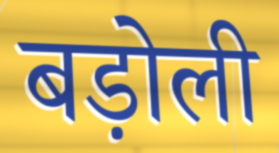
बड़ोली